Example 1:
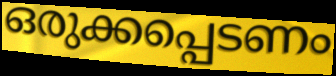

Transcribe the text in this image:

ഒരുക്കപ്പെടണം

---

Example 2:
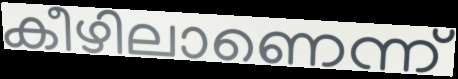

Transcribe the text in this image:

കീഴിലാണെന്ന്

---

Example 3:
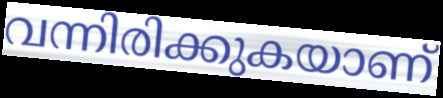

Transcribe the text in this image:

വന്നിരിക്കുകയാണ്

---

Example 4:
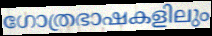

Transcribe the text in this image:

ഗോത്രഭാഷകളിലും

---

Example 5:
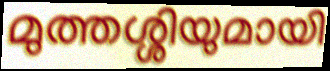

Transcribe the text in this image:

മുത്തശ്ശിയുമായി